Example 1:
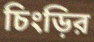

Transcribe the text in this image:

চিংড়ির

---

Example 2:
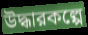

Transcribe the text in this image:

উদ্ধারকল্পে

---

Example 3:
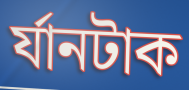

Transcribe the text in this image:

র্যানটাক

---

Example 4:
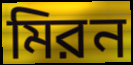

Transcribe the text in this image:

মিরন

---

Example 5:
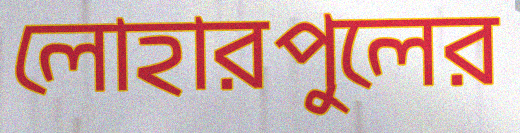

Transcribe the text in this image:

লোহারপুলের